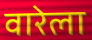
वारेला